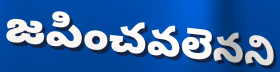
జపించవలెనని